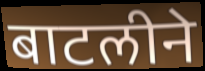
बाटलीने